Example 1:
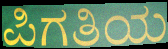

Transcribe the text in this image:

ಪಿಗತಿಯ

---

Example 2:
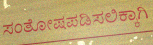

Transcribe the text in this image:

ಸಂತೋಷಪಡಿಸಲಿಕ್ಕಾಗಿ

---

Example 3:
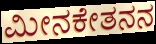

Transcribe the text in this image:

ಮೀನಕೇತನನ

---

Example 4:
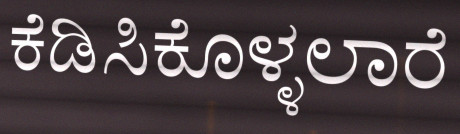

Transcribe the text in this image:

ಕೆಡಿಸಿಕೊಳ್ಳಲಾರೆ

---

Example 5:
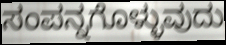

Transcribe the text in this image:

ಸಂಪನ್ನಗೊಳ್ಳುವುದು